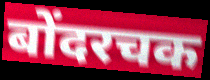
बोंदरचक